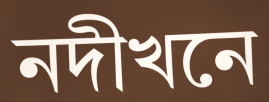
নদীখনে